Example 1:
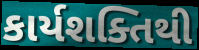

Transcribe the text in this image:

કાર્યશક્તિથી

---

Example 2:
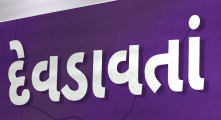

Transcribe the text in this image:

દેવડાવતાં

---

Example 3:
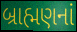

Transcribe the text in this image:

બ્રાહ્મણનાં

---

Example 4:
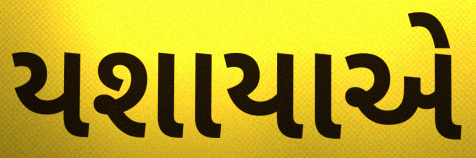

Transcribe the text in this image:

યશાયાએ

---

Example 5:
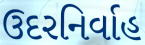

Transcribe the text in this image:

ઉદરનિર્વાહ